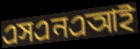
এসএনএআই